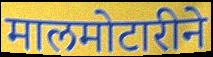
मालमोटारीने